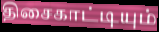
திசைகாட்டியும்